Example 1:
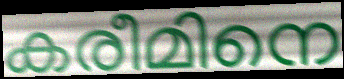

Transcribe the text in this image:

കരീമിനെ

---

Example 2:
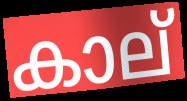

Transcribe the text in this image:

കാല്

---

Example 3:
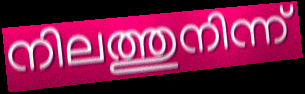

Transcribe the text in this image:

നിലത്തുനിന്ന്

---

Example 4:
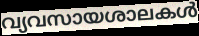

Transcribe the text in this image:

വ്യവസായശാലകൾ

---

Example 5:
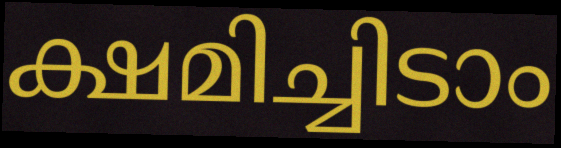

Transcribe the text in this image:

ക്ഷമിച്ചിടാം